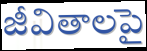
జీవితాలపై